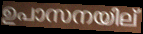
ഉപാസനയില്